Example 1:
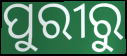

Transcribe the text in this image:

ପୁରୀରୁ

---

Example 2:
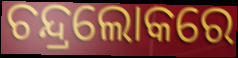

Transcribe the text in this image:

ଚନ୍ଦ୍ରଲୋକରେ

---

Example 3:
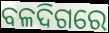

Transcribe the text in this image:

ବଳଦିଗରେ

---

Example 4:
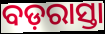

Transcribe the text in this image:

ବଡ଼ରାସ୍ତା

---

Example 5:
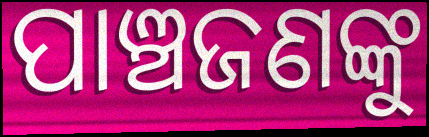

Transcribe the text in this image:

ପାଞ୍ଚଜଣଙ୍କୁ